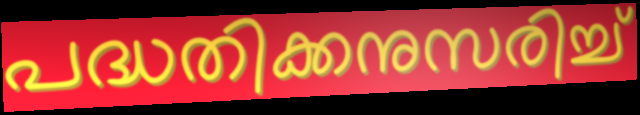
പദ്ധതിക്കനുസരിച്ച്